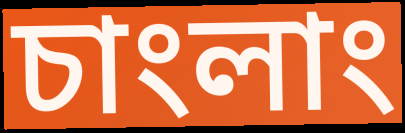
চাংলাং